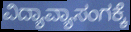
ವಿದ್ಯಾವ್ಯಾಸಂಗಕ್ಕೆ